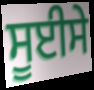
ਸੂਈਸੇ